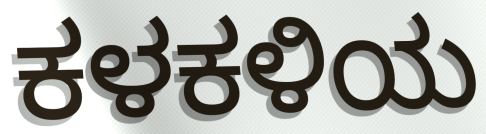
ಕಳಕಳಿಯ